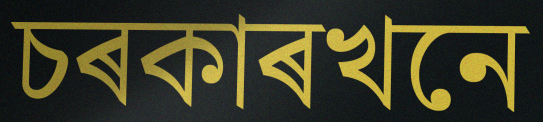
চৰকাৰখনে